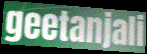
geetanjali